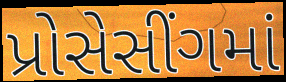
પ્રોસેસીંગમાં